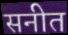
सनीत